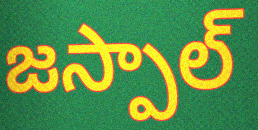
జస్పాల్